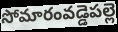
సోమారంవడ్డెపల్లె